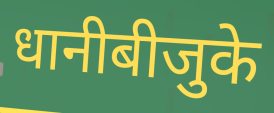
धानीबीजुके